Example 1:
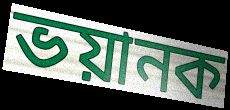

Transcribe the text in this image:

ভয়ানক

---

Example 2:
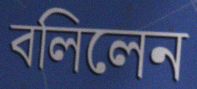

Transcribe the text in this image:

বলিলেন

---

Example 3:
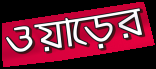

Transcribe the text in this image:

ওয়াড়ের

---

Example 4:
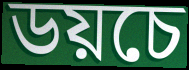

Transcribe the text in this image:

ডয়চে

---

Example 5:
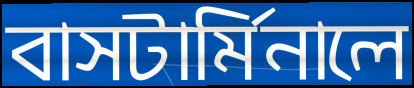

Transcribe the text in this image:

বাসটার্মিনালে